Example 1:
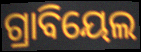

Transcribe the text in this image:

ଗ୍ରାବିୟେଲ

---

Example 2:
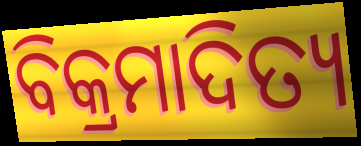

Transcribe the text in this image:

ବିକ୍ରମାଦିତ୍ୟ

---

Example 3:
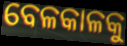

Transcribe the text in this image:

ବେଳକାଳକୁ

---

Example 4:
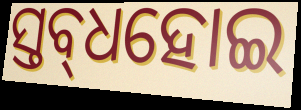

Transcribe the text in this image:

ସ୍ତବ୍‌ଧହୋଇ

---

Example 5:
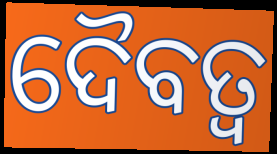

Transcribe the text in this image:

ଦୈବତ୍ଵ